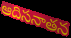
ఆదిసనాతన